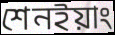
শেনইয়াং